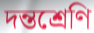
দন্তশ্রেণি